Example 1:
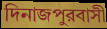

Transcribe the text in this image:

দিনাজপুরবাসী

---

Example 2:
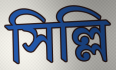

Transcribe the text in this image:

সিল্লি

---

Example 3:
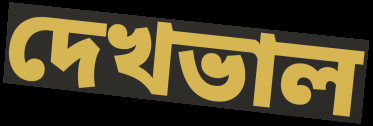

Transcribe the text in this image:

দেখভাল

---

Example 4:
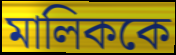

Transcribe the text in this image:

মালিককে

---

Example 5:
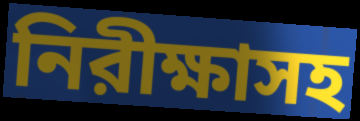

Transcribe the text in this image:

নিরীক্ষাসহ